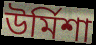
উর্মিশা